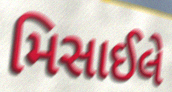
મિસાઈલે